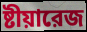
ষ্টীয়ারেজ